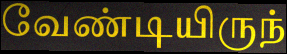
வேண்டியிருந்